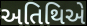
અતિથિએ